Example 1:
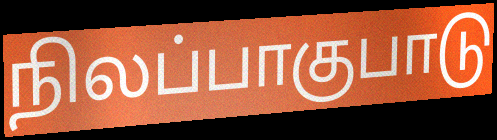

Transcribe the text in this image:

நிலப்பாகுபாடு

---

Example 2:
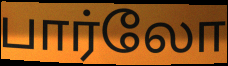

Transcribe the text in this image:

பார்லோ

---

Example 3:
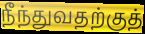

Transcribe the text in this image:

நீந்துவதற்குத்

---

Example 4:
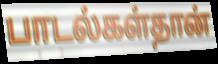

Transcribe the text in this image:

பாடல்கள்தான்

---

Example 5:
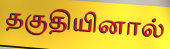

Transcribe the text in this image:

தகுதியினால்